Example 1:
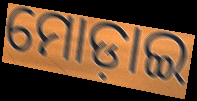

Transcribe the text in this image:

ମୋଡ଼ାଇ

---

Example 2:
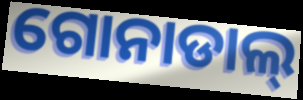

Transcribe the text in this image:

ଗୋନାଡାଲ୍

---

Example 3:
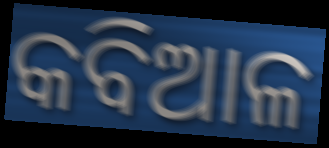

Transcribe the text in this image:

କବିଆଳ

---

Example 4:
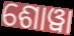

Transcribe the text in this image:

ଶୋୱା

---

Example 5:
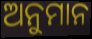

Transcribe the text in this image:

ଅନୁମାନ